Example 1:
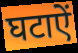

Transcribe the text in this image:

घटाऐं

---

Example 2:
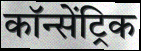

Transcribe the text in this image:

कॉन्सेंट्रिक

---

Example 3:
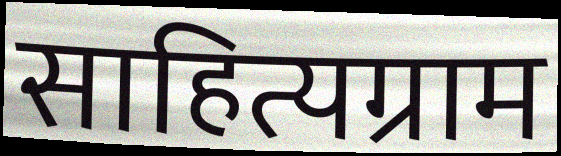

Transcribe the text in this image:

साहित्यग्राम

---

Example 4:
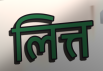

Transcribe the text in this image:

लित्त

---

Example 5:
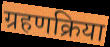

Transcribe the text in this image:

ग्रहणक्रिया